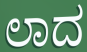
ಲಾದ